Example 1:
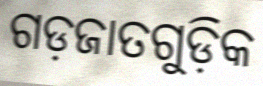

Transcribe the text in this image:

ଗଡ଼ଜାତଗୁଡ଼ିକ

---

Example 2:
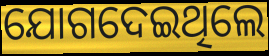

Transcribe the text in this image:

ଯୋଗଦେଇଥିଲେ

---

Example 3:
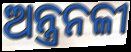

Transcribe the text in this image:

ଅନ୍ତ୍ରନଳୀ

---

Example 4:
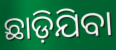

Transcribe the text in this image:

ଛାଡ଼ିଯିବା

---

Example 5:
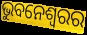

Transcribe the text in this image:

ଭୁବନେଶ୍ବରର